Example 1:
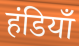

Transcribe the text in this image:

हंडियाँ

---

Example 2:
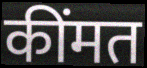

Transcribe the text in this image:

कींमत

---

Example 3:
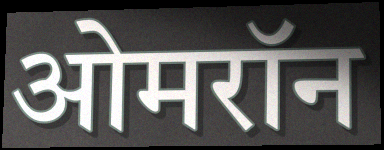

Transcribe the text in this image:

ओमरॉन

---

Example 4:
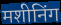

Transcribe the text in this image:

मशीनिंग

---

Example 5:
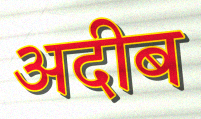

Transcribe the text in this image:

अदीब